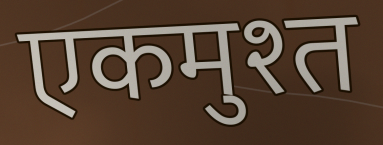
एकमुश्त